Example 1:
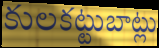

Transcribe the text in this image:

కులకట్టుబాట్లు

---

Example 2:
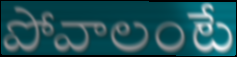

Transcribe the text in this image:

పోవాలంటే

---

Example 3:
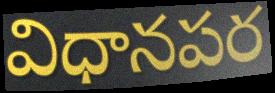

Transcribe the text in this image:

విధానపర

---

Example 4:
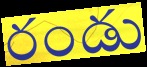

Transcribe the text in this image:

రండు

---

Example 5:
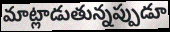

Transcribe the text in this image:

మాట్లాడుతున్నప్పుడూ